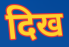
दिख